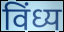
विंध्य